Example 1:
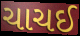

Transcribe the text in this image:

ચાચઈ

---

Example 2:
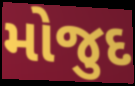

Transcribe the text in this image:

મોજુદ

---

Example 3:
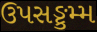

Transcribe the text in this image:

ઉપસઙ્કમ્મ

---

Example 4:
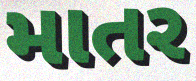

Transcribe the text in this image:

માતર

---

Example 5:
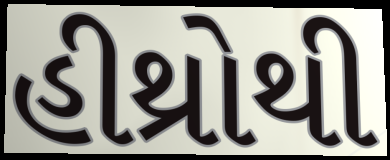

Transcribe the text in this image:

હીથ્રોથી